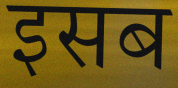
इसब